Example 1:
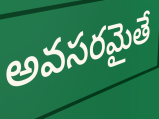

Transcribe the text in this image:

అవసరమైతే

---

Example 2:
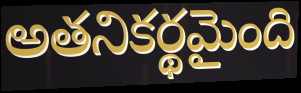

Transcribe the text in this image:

అతనికర్థమైంది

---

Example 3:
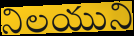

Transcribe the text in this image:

నిలయుని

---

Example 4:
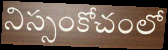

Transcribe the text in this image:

నిస్సంకోచంలో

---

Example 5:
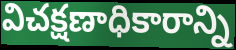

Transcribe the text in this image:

విచక్షణాధికారాన్ని